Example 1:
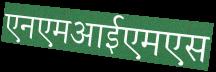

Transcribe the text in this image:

एनएमआईएमएस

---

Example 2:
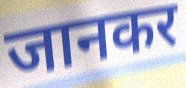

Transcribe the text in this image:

जानकर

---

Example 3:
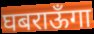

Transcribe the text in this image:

घबराऊँगा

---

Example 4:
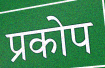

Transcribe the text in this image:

प्रकोप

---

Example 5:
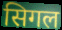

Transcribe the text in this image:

सिगल